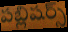
పబ్లిషర్స్